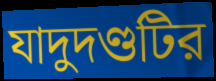
যাদুদণ্ডটির